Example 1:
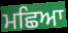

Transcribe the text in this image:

ਮਛਿਆ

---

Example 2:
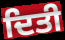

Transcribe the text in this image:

ਦਿਤੀ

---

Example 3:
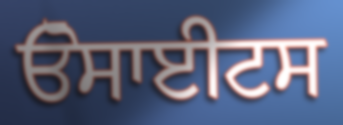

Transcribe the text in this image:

ਓੋਸਾਈਟਸ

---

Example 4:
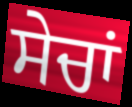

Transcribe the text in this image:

ਸੇਚਾਂ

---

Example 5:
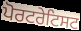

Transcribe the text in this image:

ਪੋਰਟਰੇਟਿਸਟ